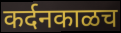
कर्दनकाळच